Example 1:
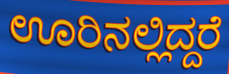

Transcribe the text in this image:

ಊರಿನಲ್ಲಿದ್ದರೆ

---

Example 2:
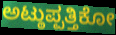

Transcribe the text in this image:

ಅಟ್ಠುಪ್ಪತ್ತಿಕೋ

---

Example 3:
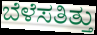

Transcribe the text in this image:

ಬೆಳೆಸತಿತ್ತು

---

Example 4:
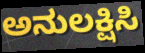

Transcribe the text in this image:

ಅನುಲಕ್ಷಿಸಿ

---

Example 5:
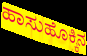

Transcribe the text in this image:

ಹಾಸುಹೊಕ್ಕಿನ